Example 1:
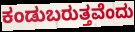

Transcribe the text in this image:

ಕಂಡುಬರುತ್ತವೆಂದು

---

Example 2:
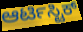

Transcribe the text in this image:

ಆರ್ಟಿಸ್ಟಿಕ್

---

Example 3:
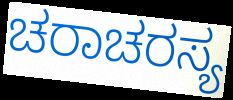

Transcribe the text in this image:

ಚರಾಚರಸ್ಯ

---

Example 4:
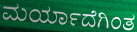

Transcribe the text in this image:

ಮರ್ಯಾದೆಗಿಂತ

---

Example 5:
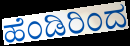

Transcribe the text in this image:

ಹೆಂಡಿರಿಂದ